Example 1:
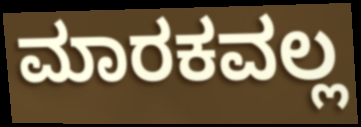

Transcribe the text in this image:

ಮಾರಕವಲ್ಲ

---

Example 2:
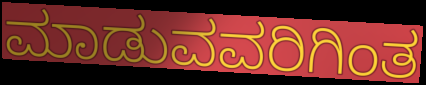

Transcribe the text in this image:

ಮಾಡುವವರಿಗಿಂತ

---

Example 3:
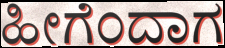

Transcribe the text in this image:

ಹೀಗೆಂದಾಗ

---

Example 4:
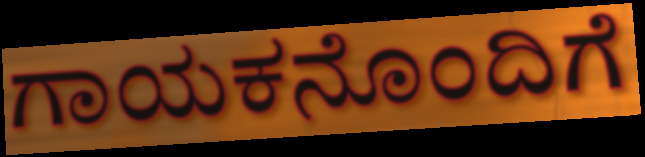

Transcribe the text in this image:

ಗಾಯಕನೊಂದಿಗೆ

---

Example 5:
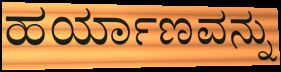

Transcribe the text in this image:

ಹರ್ಯಾಣವನ್ನು